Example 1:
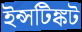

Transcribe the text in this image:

ইন্সটিঙ্কট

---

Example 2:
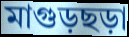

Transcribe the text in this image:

মাগুড়ছড়া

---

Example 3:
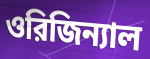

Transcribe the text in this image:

ওরিজিন্যাল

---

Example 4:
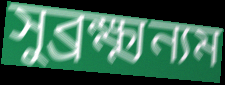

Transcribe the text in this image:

সুব্রক্ষ্মন্যম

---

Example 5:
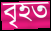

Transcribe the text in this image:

বৃহত